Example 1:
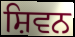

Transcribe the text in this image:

ਸ਼ਿਵਨ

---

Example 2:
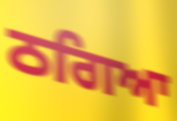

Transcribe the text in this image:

ਠਗਿਆ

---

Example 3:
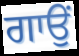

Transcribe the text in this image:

ਗਾਉਂ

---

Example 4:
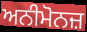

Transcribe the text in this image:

ਅਨੀਮੋਨਜ਼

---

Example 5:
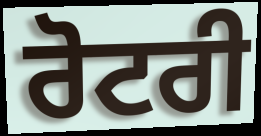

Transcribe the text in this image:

ਰੋਟਰੀ